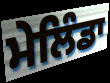
ਮੇਲਿੰਡਾ